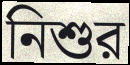
নিশুর